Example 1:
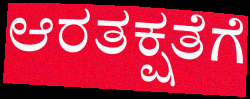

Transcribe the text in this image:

ಆರತಕ್ಷತೆಗೆ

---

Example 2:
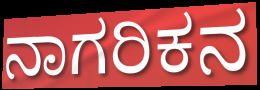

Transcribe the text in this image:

ನಾಗರಿಕನ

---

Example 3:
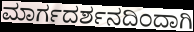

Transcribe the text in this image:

ಮಾರ್ಗದರ್ಶನದಿಂದಾಗಿ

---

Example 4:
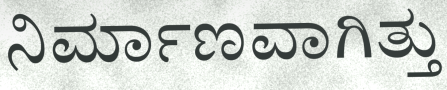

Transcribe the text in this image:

ನಿರ್ಮಾಣವಾಗಿತ್ತು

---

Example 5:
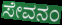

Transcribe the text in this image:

ಸೇವನಂ